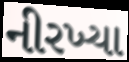
નીરખ્યા